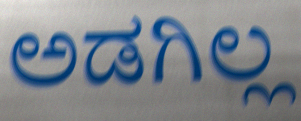
ಅಡಗಿಲ್ಲ